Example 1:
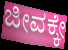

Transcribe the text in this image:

ಜೀವಕ್ಕೇ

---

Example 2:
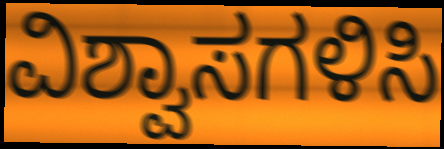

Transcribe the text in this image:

ವಿಶ್ವಾಸಗಳಿಸಿ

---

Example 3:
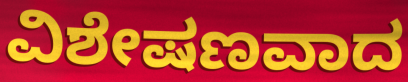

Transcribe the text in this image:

ವಿಶೇಷಣವಾದ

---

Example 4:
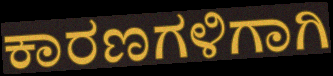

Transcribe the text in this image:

ಕಾರಣಗಳಿಗಾಗಿ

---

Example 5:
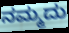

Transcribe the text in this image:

ನಮ್ಮದು